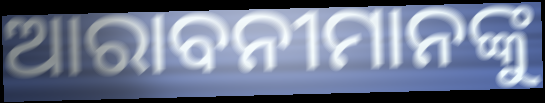
ଆରାବନୀମାନଙ୍କୁ